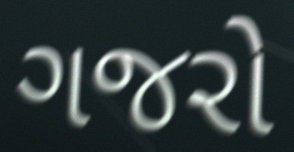
ગજરો